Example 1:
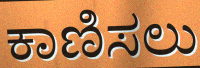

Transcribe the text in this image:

ಕಾಣಿಸಲು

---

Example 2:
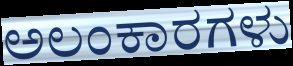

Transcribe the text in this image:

ಅಲಂಕಾರಗಳು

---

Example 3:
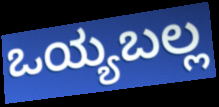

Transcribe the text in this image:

ಒಯ್ಯಬಲ್ಲ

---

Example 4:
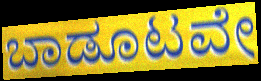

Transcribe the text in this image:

ಬಾಡೂಟವೇ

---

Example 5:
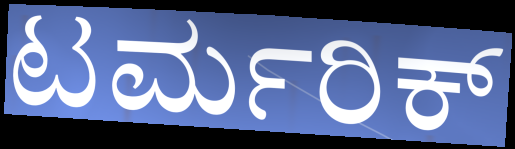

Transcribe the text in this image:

ಟರ್ಮರಿಕ್